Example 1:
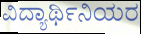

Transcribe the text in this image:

ವಿದ್ಯಾರ್ಥಿನಿಯರ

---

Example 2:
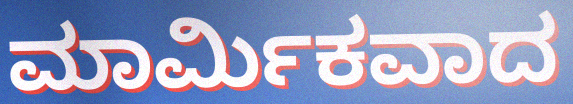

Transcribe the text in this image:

ಮಾರ್ಮಿಕವಾದ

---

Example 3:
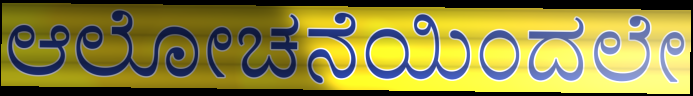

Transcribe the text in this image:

ಆಲೋಚನೆಯಿಂದಲೇ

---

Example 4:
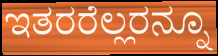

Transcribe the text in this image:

ಇತರರೆಲ್ಲರನ್ನೂ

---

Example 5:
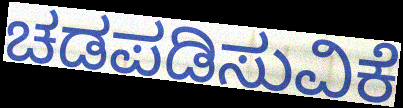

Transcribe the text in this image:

ಚಡಪಡಿಸುವಿಕೆ